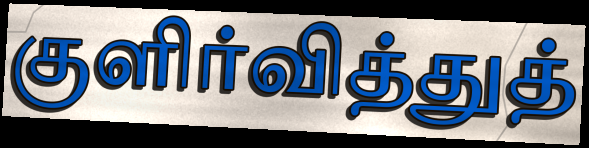
குளிர்வித்துத்